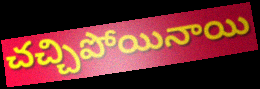
చచ్చిపోయినాయి